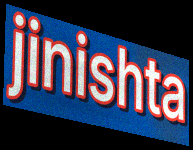
jinishta